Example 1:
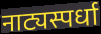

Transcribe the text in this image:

नाट्यस्पर्धा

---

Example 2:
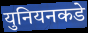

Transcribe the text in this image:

युनियनकडे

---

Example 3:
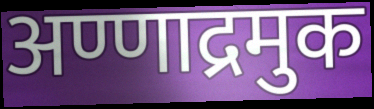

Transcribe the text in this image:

अण्णाद्रमुक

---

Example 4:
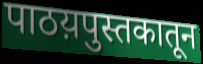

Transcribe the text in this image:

पाठय़पुस्तकातून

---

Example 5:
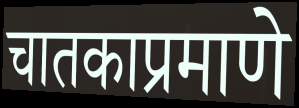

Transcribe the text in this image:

चातकाप्रमाणे